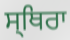
ਸ੍ਥਿਰਾ